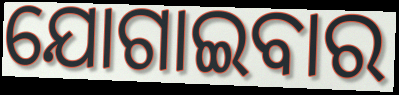
ଯୋଗାଇବାର